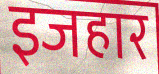
इजहार